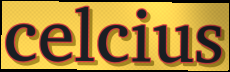
celcius